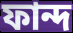
ফান্দ